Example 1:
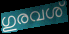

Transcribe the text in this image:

ഗുരവശ്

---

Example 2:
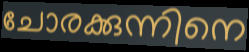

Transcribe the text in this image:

ചോരക്കുന്നിനെ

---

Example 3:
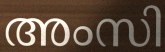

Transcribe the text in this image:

അംസി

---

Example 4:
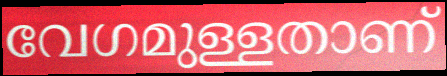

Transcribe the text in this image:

വേഗമുള്ളതാണ്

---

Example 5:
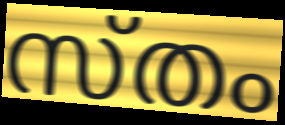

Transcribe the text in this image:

സ്‌തം